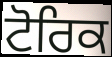
ਟੋਰਿਕ